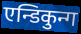
एन्डिकुन्ग